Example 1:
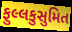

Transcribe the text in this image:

ફુલ્લકુસુમિત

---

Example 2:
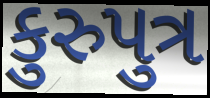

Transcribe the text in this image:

કુરુપુત્ર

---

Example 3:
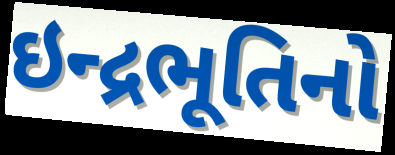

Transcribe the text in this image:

ઇન્દ્રભૂતિનો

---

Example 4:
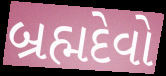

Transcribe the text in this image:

બ્રહ્મદેવો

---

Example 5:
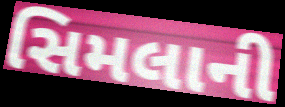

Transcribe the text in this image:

સિમલાની